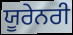
ਯੂਰੇਨਰੀ